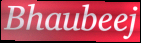
Bhaubeej